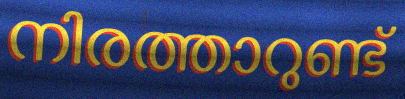
നിരത്താറുണ്ട്